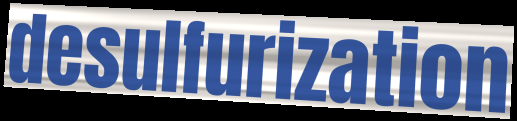
desulfurization